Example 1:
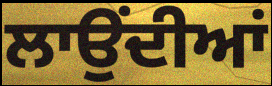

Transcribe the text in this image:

ਲਾਉੰਦੀਆਂ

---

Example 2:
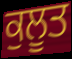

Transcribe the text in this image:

ਕੁਲੂਤ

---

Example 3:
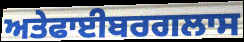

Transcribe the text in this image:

ਅਤੇਫਾਈਬਰਗਲਾਸ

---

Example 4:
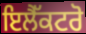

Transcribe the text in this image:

ਇਲੈੱਕਟਰੋ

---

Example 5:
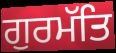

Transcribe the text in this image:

ਗੁਰਮੱਤਿ